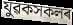
যুৱকসকলৰ